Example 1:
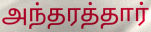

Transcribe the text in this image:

அந்தரத்தார்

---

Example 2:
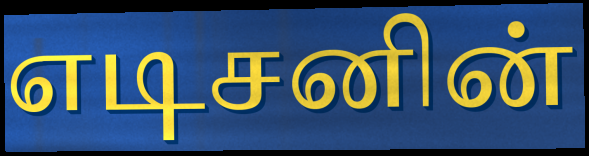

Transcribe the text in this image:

எடிசனின்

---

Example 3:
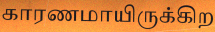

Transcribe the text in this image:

காரணமாயிருக்கிற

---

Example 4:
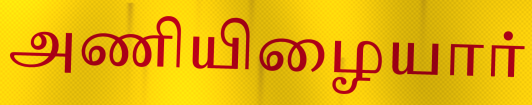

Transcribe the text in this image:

அணியிழையார்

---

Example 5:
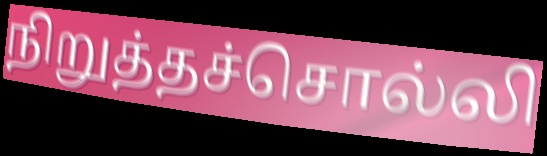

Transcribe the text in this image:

நிறுத்தச்சொல்லி